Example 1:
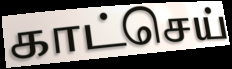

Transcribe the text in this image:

காட்செய்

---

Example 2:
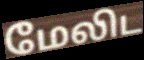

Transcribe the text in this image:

மேலிட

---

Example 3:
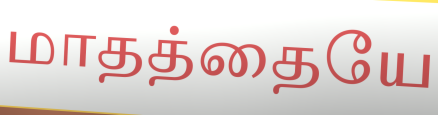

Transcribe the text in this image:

மாதத்தையே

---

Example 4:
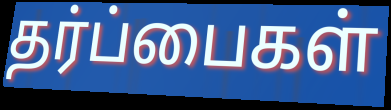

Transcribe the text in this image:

தர்ப்பைகள்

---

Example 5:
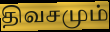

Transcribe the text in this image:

திவசமும்